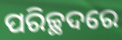
ପରିଚ୍ଛଦରେ